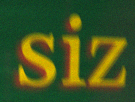
siz